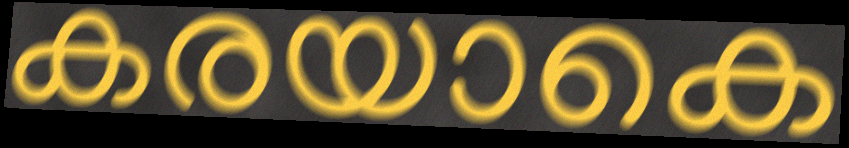
കരയാകെ